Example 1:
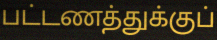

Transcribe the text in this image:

பட்டணத்துக்குப்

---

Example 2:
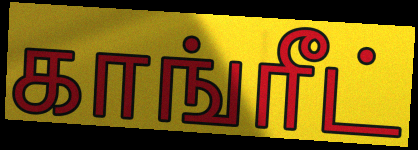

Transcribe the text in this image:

காங்ரீட்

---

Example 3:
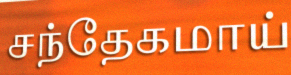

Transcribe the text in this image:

சந்தேகமாய்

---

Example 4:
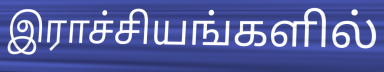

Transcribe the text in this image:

இராச்சியங்களில்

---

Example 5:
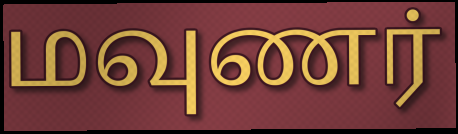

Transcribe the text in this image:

மவுணர்